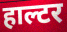
हाल्टर